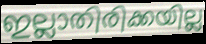
ഇല്ലാതിരിക്കയില്ല